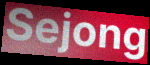
Sejong